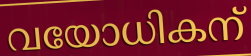
വയോധികന്